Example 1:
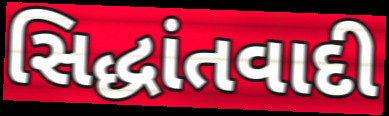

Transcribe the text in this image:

સિદ્ધાંતવાદી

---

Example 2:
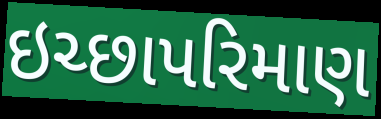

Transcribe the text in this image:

ઇચ્છાપરિમાણ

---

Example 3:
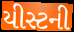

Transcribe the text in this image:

યીસ્ટની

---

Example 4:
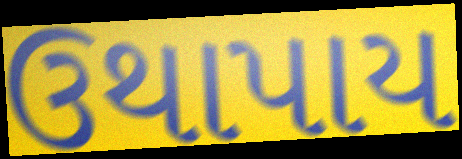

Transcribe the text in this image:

ઉથાપાય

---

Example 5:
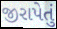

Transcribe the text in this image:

જીરાપેતું